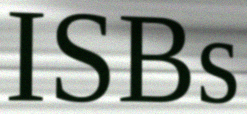
ISBs